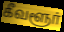
கீவளூர்